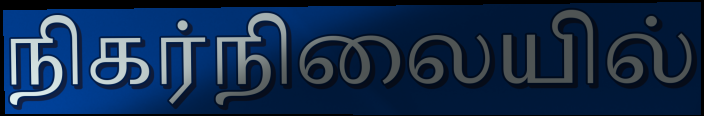
நிகர்நிலையில்